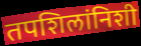
तपशिलांनिशी